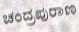
ಚಂದ್ರಪುರಾಣ